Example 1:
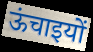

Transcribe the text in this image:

ऊंचाइयों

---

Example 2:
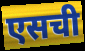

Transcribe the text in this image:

एसची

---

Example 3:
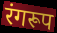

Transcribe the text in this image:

रंगरूप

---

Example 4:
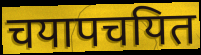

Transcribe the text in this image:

चयापचयित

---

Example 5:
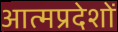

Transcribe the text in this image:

आत्मप्रदेशों